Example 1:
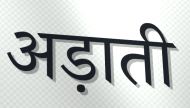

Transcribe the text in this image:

अड़ाती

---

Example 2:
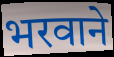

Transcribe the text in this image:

भरवाने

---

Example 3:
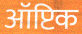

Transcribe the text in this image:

ऑप्टिक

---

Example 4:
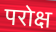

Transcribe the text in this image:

परोक्ष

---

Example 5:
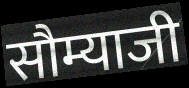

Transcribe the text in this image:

सौम्याजी